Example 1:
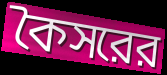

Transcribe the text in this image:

কৈসরের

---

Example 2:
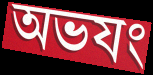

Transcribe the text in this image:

অভযং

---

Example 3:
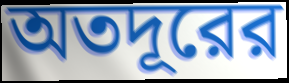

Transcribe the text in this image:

অতদূরের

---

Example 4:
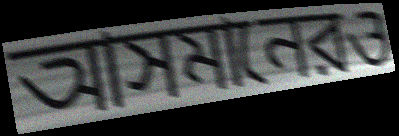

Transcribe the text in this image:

আসমানেরও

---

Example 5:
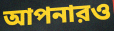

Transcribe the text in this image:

আপনারও